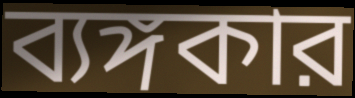
ব্যঙ্গকার